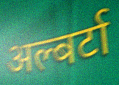
अल्बर्टा